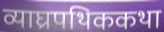
व्याघ्रपथिककथा